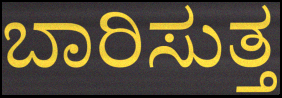
ಬಾರಿಸುತ್ತ